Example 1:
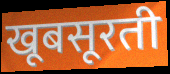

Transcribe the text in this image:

खूबसूरती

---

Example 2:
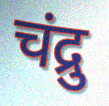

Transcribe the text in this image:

चंद्रु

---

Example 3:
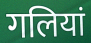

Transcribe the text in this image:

गलियां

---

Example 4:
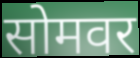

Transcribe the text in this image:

सोमवर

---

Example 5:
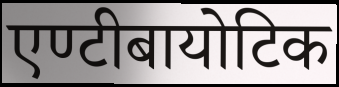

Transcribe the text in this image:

एण्टीबायोटिक